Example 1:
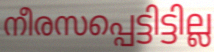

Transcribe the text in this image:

നീരസപ്പെട്ടിട്ടില്ല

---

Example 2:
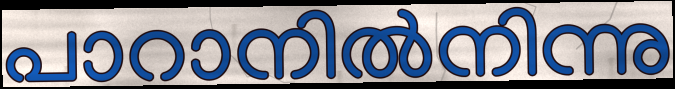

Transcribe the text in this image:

പാറാനിൽനിന്നു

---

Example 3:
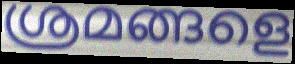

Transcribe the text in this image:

ശ്രമങ്ങളെ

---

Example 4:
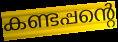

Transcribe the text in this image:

കണ്ടപ്പന്റെ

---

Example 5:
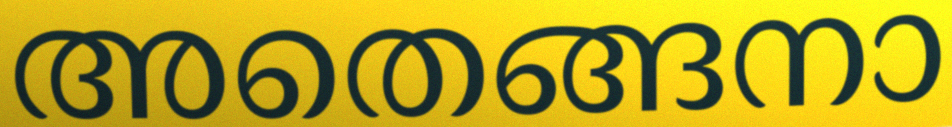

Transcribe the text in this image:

അതെങ്ങനാ